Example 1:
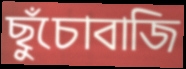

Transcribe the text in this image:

ছুঁচোবাজি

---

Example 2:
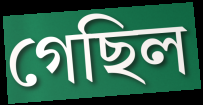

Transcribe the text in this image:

গেছিল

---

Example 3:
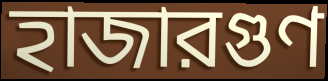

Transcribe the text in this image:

হাজারগুণ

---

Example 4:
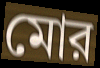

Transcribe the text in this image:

মোর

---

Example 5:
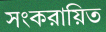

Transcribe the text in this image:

সংকরায়িত